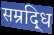
सम्रद्धि